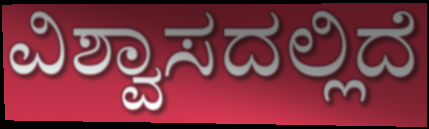
ವಿಶ್ವಾಸದಲ್ಲಿದೆ